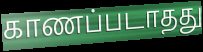
காணப்படாதது